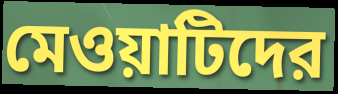
মেওয়াটিদের